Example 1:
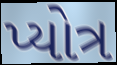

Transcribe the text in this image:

પ્યોત્ર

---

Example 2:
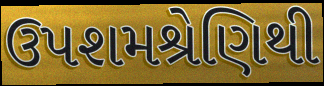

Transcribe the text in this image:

ઉપશમશ્રેણિથી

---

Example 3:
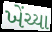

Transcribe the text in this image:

ખેંચ્યા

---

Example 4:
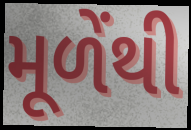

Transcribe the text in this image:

મૂળેંથી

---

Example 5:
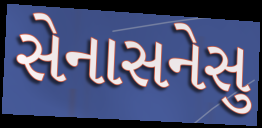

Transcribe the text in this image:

સેનાસનેસુ